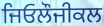
ਜਿਓਲੌਜੀਕਲ